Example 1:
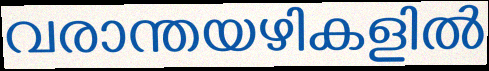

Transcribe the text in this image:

വരാന്തയഴികളിൽ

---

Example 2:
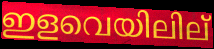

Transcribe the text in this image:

ഇളവെയിലില്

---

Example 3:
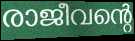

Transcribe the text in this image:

രാജീവന്റെ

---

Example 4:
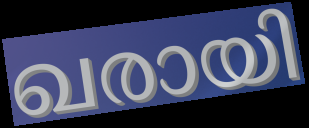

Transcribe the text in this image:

ഖരായി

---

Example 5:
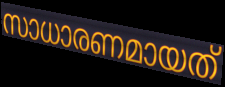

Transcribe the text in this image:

സാധാരണമായത്